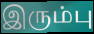
இரும்பு